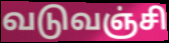
வடுவஞ்சி